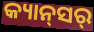
କ୍ୟାନ୍‍ସର୍